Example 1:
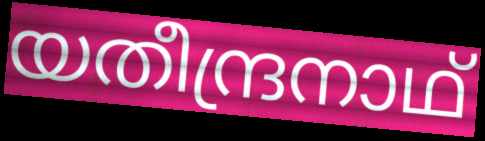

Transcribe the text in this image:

യതീന്ദ്രനാഥ്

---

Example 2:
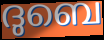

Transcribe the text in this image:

ദുബെ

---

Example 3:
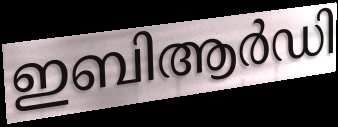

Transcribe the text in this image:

ഇബിആർഡി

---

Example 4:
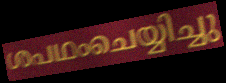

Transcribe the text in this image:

ശപഥംചെയ്യിച്ചു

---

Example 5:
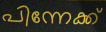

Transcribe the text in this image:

പിന്നേക്ക്